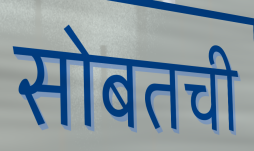
सोबतची